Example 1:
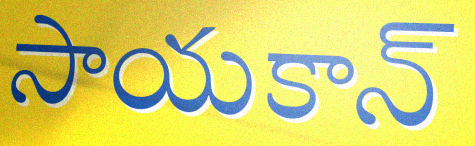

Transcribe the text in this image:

సాయకాన్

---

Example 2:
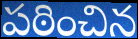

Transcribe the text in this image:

పఠించిన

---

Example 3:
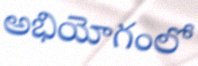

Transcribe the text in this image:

అభియోగంలో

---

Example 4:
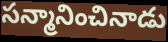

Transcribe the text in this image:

సన్మానించినాడు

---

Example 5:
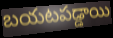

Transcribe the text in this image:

బయటపడ్డాయి